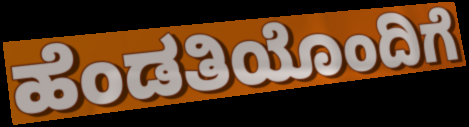
ಹೆಂಡತಿಯೊಂದಿಗೆ